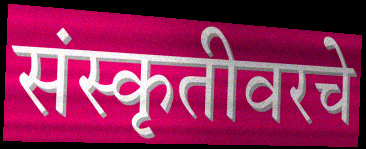
संस्कृतीवरचे